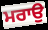
ਮਰਾਉ